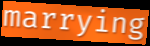
marrying